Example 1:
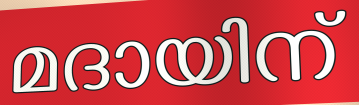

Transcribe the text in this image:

മദായിന്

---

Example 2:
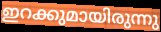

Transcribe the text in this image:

ഇറക്കുമായിരുന്നു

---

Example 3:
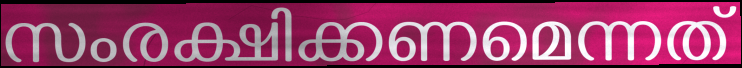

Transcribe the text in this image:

സംരക്ഷിക്കണമെന്നത്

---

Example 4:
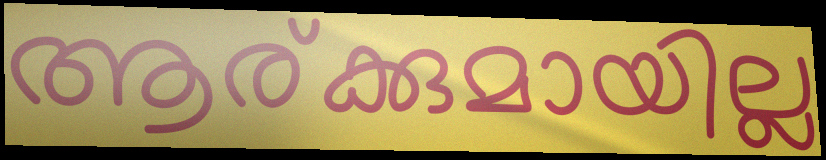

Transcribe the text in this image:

ആര്ക്കുമായില്ല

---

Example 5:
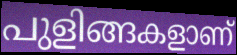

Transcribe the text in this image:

പുളിങ്ങകളാണ്